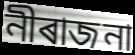
নীৰাজনা